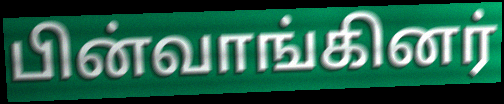
பின்வாங்கினர்